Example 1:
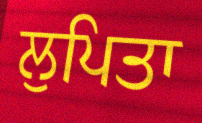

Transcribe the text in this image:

ਲੁਪਿਤਾ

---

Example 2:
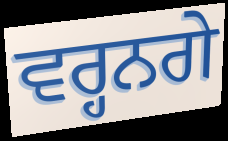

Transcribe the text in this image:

ਵਰ੍ਹਨਗੇ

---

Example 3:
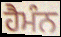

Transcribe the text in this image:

ਹੈਮੰਨ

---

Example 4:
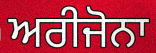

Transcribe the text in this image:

ਅਰੀਜੋਨਾ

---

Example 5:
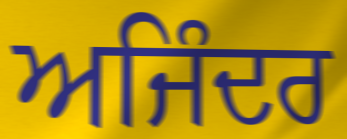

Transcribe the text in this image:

ਅਜਿੰਦਰ